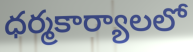
ధర్మకార్యాలలో